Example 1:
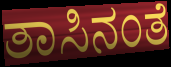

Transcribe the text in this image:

ತಾಸಿನಂತೆ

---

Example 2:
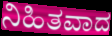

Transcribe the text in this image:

ನಿಹಿತವಾದ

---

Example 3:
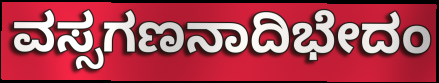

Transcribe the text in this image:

ವಸ್ಸಗಣನಾದಿಭೇದಂ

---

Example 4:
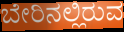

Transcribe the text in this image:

ಬೇರಿನಲ್ಲಿರುವ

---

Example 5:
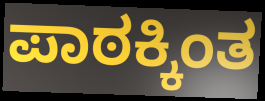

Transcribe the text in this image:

ಪಾಠಕ್ಕಿಂತ